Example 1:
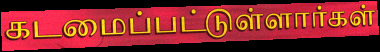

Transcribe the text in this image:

கடமைப்பட்டுள்ளார்கள்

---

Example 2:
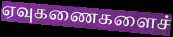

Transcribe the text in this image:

ஏவுகணைகளைச்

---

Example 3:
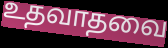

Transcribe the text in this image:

உதவாதவை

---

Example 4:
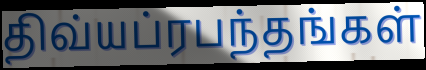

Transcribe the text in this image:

திவ்யப்ரபந்தங்கள்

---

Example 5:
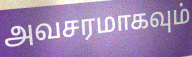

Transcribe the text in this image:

அவசரமாகவும்